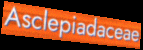
Asclepiadaceae